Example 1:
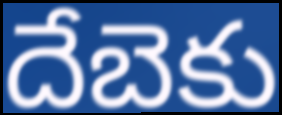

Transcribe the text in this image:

దేబెకు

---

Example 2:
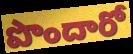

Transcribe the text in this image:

పొందారో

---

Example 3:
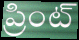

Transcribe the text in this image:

ప్రింట్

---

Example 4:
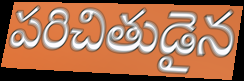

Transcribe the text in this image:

పరిచితుడైన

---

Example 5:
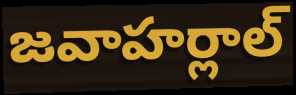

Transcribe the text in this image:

జవాహర్లాల్